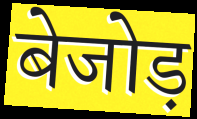
बेजोड़